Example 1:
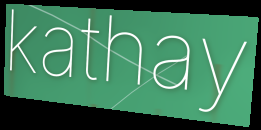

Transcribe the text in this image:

kathay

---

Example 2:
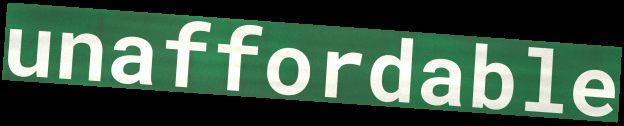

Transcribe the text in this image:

unaffordable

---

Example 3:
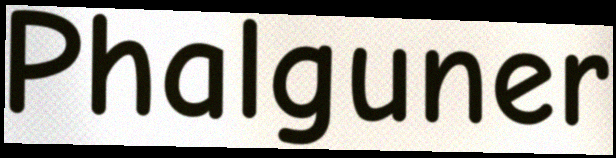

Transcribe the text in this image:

Phalguner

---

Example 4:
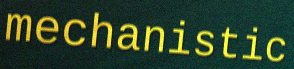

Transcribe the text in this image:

mechanistic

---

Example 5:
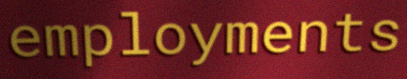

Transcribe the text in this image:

employments